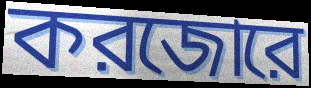
করজোরে